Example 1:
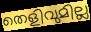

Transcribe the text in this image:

തെളിവുമില്ല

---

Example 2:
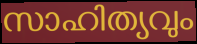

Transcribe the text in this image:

സാഹിത്യവും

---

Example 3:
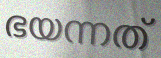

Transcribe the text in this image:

ഭയന്നത്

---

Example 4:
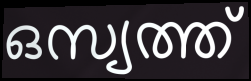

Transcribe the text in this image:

ഒസ്യത്ത്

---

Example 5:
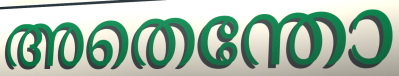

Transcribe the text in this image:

അതെന്തോ